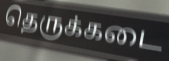
தெருக்கடை